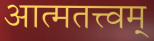
आत्मतत्त्वम्